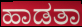
ಹಾಡತಾ